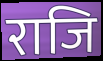
राजि